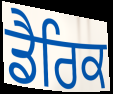
ਡੈਰਿਕ